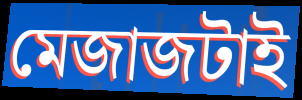
মেজাজটাই